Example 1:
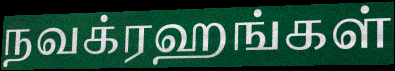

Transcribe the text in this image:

நவக்ரஹங்கள்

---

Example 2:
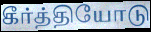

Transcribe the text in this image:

கீர்த்தியோடு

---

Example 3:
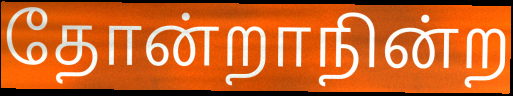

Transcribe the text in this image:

தோன்றாநின்ற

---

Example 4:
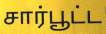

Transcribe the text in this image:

சார்பூட்ட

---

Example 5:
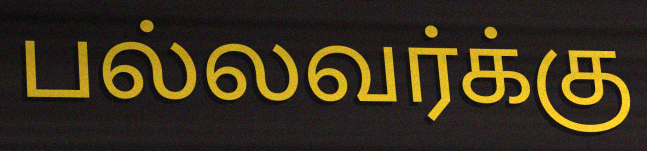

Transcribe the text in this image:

பல்லவர்க்கு